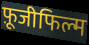
फ़ूजीफिल्म